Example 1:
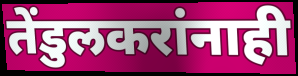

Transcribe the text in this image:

तेंडुलकरांनाही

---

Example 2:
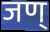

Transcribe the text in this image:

जण्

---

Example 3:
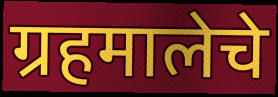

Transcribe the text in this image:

ग्रहमालेचे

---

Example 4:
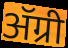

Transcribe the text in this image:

ॲग्री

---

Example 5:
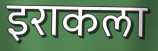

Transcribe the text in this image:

इराकला